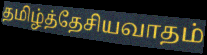
தமிழ்த்தேசியவாதம்